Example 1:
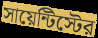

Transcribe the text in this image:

সায়েন্টিস্টের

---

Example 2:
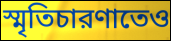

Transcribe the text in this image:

স্মৃতিচারণাতেও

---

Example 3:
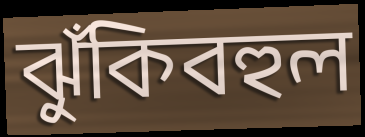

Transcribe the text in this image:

ঝুঁকিবহুল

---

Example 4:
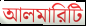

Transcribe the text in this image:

আলমারিটি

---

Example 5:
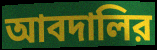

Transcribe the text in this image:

আবদালির